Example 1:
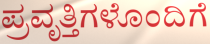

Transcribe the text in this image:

ಪ್ರವೃತ್ತಿಗಳೊಂದಿಗೆ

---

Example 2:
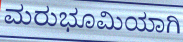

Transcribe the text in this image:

ಮರುಭೂಮಿಯಾಗಿ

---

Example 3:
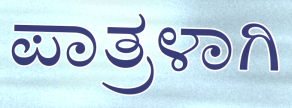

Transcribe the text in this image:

ಪಾತ್ರಳಾಗಿ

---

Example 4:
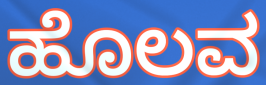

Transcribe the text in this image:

ಹೊಲವ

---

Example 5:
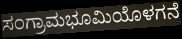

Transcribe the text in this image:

ಸಂಗ್ರಾಮಭೂಮಿಯೊಳಗನೆ